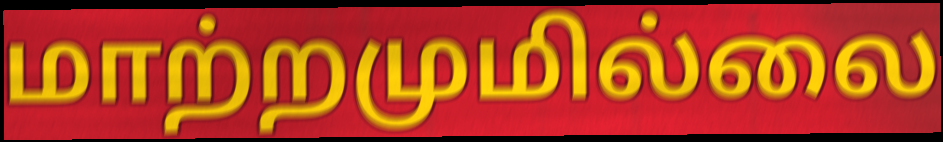
மாற்றமுமில்லை